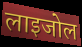
लाइजोल